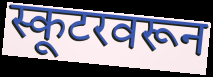
स्कूटरवरून